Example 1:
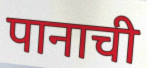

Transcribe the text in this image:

पानाची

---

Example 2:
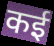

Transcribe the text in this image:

कई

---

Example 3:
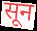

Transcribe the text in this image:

सून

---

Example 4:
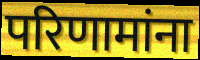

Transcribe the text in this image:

परिणामांना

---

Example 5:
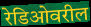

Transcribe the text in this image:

रेडिओवरील